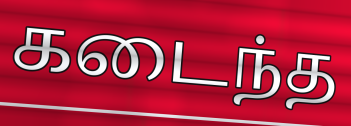
கடைந்த